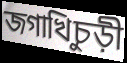
জগাখিচুড়ী